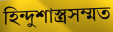
হিন্দুশাস্ত্রসম্মত